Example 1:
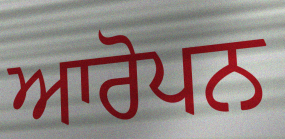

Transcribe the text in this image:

ਆਰੋਪਨ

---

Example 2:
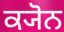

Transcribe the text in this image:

ਕ੍ਯੋਨ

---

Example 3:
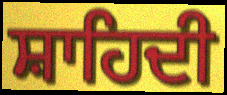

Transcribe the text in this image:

ਸ਼ਾਹਿਦੀ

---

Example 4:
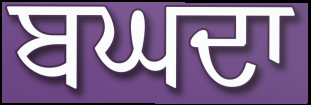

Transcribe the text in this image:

ਬਘਦਾ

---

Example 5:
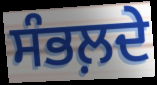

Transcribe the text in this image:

ਸੰਭਲ਼ਦੇ